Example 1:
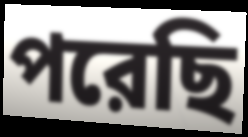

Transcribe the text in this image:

পরেছি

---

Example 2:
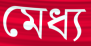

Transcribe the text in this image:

মেধ্য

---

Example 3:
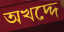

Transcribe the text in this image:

অখদ্দে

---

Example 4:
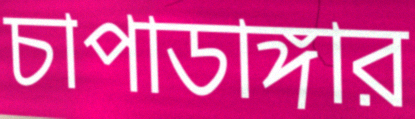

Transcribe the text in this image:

চাপাডাঙ্গার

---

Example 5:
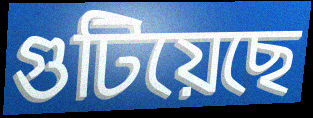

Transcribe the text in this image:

গুটিয়েছে